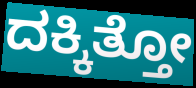
ದಕ್ಕಿತ್ತೋ